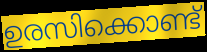
ഉരസിക്കൊണ്ട്